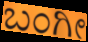
ಬಂಗೀ